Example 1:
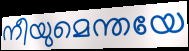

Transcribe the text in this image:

നീയുമെന്തയേ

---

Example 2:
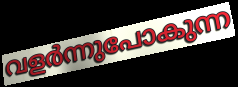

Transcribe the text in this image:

വളർന്നുപോകുന്ന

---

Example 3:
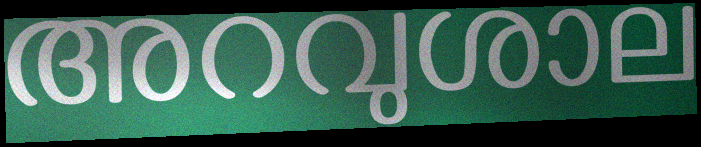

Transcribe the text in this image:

അറവുശാല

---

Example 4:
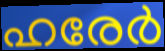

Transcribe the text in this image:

ഹരേർ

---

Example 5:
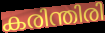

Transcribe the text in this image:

കരിന്തിരി